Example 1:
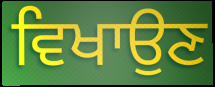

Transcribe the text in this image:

ਵਿਖਾਉਣ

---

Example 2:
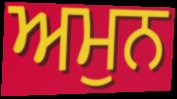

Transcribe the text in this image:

ਅਮੁਨ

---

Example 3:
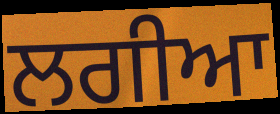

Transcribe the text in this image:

ਲਗੀਆ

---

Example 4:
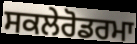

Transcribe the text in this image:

ਸਕਲੇਰੋਡਰਮਾ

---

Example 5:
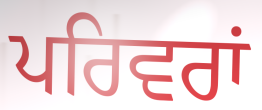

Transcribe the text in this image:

ਪਰਿਵਰਾਂ